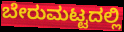
ಬೇರುಮಟ್ಟದಲ್ಲಿ